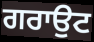
ਗਰਾਉਟ